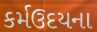
કર્મઉદયના